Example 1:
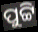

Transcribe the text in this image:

ପୁଟ୍ଟି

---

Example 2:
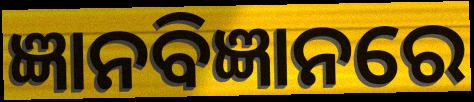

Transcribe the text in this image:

ଜ୍ଞାନବିଜ୍ଞାନରେ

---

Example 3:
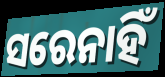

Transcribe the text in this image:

ସରେନାହିଁ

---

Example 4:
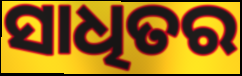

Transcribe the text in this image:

ସାଧିତର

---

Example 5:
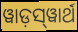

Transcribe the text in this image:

ୱାଡ଼ସ୍‌ୱାର୍ଥ